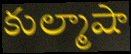
కుల్మాషా